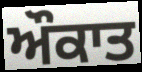
ਔਕਾਤ